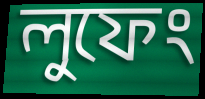
লুফেং